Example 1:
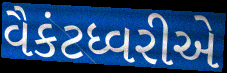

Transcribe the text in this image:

વૈકંટધ્વરીએ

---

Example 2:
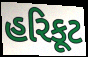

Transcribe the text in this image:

હરિકૂટ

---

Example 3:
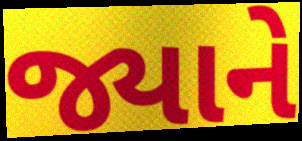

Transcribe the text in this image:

જ્યાને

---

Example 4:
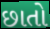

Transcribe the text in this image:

છાતો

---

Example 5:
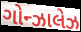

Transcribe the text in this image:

ગોન્ઝાલેઝ